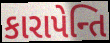
કારાપેન્તિ